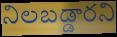
నిలబడ్డారని